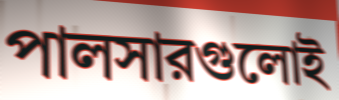
পালসারগুলোই